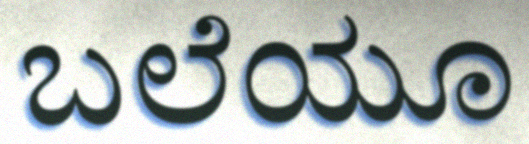
ಬಲೆಯೂ